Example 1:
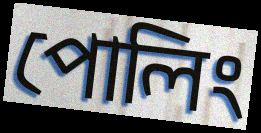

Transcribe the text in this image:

পোলিং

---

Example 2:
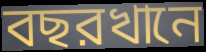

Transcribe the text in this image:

বছরখানে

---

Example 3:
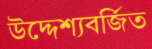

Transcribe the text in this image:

উদ্দেশ্যবর্জিত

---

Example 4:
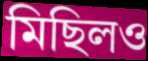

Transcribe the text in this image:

মিছিলও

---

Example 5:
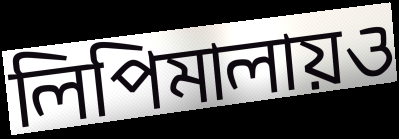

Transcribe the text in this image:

লিপিমালায়ও